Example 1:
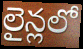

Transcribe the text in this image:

లైన్లలో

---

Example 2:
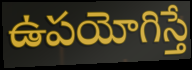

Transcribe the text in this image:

ఉపయోగిస్తే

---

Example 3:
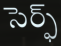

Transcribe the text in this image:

సెర్ఫ్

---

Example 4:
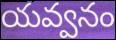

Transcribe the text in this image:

యవ్వనం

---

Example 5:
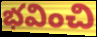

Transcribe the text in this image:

భవించి